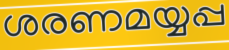
ശരണമയ്യപ്പ